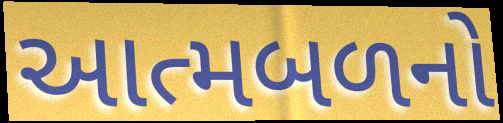
આત્મબળનો